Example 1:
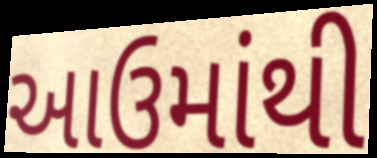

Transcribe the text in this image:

આઉમાંથી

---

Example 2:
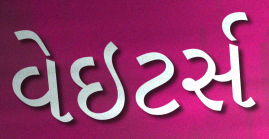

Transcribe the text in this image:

વેઇટર્સ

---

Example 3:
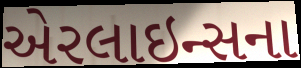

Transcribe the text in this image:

એરલાઇન્સના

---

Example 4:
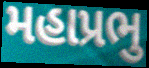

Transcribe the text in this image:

મહાપ્રભુ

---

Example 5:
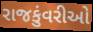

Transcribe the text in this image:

રાજકુંવરીઓ